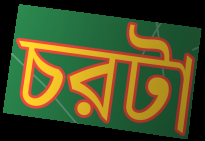
চরটা